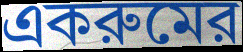
একরুমের